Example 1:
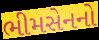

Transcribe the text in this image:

ભીમસેનનો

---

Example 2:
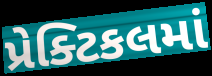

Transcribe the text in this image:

પ્રેક્ટિકલમાં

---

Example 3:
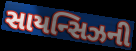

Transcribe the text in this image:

સાયન્સિઝની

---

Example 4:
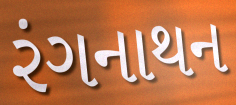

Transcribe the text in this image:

રંગનાથન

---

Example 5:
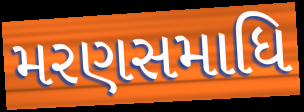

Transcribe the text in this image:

મરણસમાધિ